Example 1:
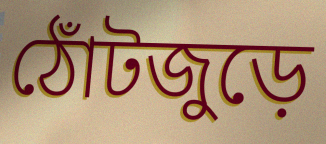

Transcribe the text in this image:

ঠোঁটজুড়ে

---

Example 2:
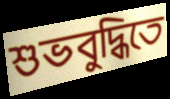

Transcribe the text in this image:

শুভবুদ্ধিতে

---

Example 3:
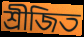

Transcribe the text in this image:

শ্রীজিত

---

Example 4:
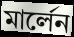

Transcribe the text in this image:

মার্লেন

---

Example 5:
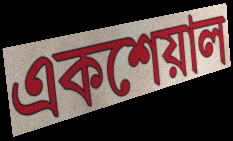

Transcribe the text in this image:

একশেয়াল